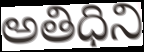
అతిధిని